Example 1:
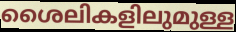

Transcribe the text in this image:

ശൈലികളിലുമുള്ള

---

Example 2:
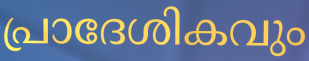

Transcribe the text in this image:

പ്രാദേശികവും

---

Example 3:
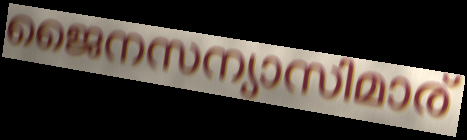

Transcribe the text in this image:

ജൈനസന്യാസിമാര്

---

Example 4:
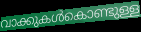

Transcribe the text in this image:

വാക്കുകൾകൊണ്ടുള്ള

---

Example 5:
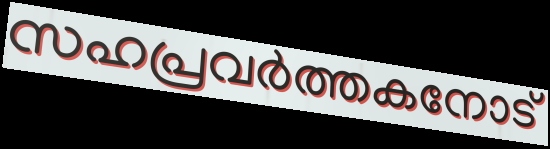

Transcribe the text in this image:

സഹപ്രവർത്തകനോട്